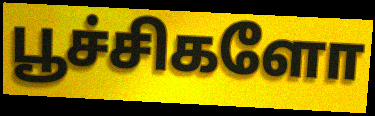
பூச்சிகளோ